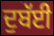
ਦੁਬੱਈ